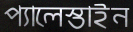
প্যালেস্তাইন